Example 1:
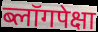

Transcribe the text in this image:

ब्लॉगपेक्षा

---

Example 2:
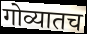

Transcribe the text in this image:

गोव्यातच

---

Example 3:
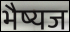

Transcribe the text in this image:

भैष्यज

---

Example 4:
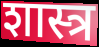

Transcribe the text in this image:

शास्त्र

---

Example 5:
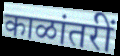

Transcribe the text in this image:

काळांतरीं